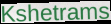
Kshetrams